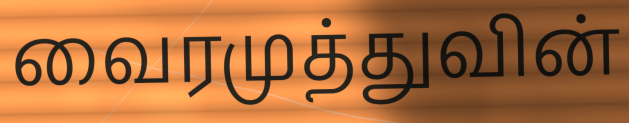
வைரமுத்துவின்